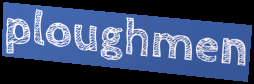
ploughmen